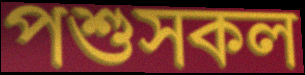
পশুসকল